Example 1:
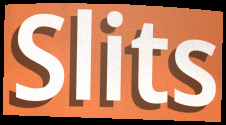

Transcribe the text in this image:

Slits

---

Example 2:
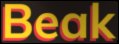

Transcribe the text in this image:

Beak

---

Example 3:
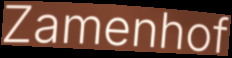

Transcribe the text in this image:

Zamenhof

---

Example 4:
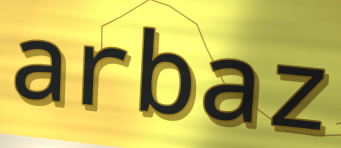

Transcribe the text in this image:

arbaz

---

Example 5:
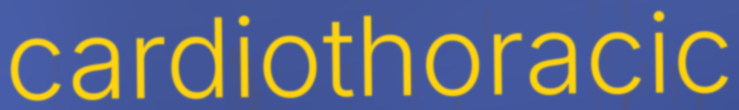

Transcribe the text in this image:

cardiothoracic